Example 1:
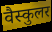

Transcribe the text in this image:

वैस्कुलर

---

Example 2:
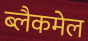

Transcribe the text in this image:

ब्लैकमेल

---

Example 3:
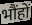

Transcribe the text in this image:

भौंहों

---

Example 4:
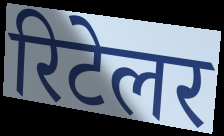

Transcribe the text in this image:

रिटेलर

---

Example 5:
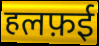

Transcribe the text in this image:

हलफ़ई